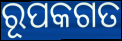
ରୂପକଗତ